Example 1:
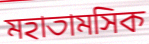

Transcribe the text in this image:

মহাতামসিক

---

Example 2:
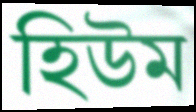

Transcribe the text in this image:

হিউম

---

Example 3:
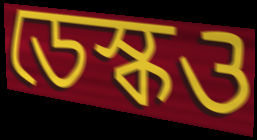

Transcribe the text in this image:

ডেস্কও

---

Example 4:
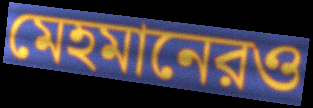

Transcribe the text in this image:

মেহমানেরও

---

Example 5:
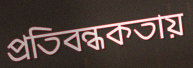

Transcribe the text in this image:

প্রতিবন্ধকতায়